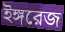
ইঙ্গরেজ